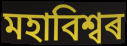
মহাবিশ্বৰ